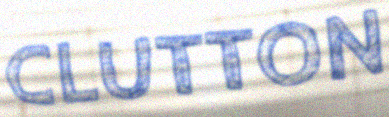
CLUTTON